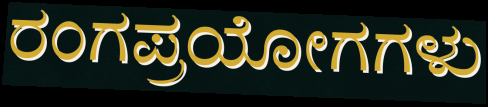
ರಂಗಪ್ರಯೋಗಗಳು